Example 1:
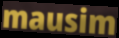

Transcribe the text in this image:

mausim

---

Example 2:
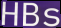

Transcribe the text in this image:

HBs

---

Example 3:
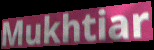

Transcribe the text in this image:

Mukhtiar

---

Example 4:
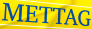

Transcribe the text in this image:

METTAG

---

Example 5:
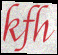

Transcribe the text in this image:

kfh